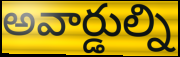
అవార్డుల్ని